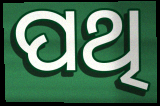
ପଥି